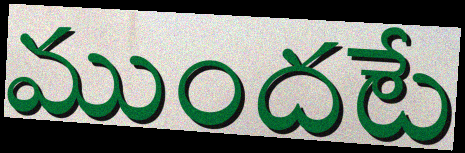
ముందటే